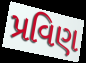
પ્રવિણ